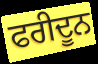
ਫਰੀਦੂਨ